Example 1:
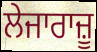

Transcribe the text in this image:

ਲੇਜਾਰਾਜ਼ੂ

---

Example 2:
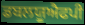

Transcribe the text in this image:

ਡਬਲਯੂਐਫਪੀ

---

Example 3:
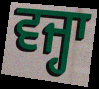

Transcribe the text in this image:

ਵਜ੍ਹਾ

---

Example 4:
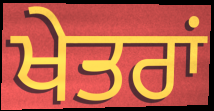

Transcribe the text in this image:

ਖੇਤਰਾਂ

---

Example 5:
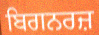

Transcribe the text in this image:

ਬਿਗਨਰਜ਼